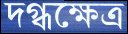
দগ্ধক্ষেত্র